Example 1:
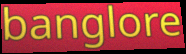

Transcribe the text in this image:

banglore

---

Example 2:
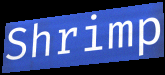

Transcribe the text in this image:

Shrimp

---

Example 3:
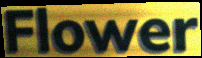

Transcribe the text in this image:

Flower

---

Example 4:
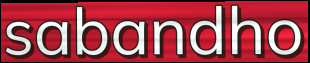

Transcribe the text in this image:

sabandho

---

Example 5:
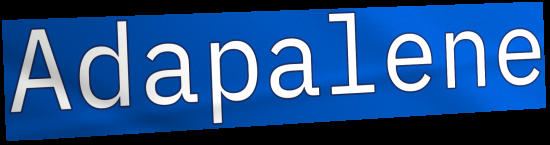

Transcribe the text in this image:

Adapalene